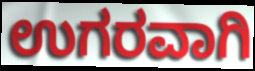
ಉಗರವಾಗಿ